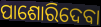
ପାଶୋରିଦେବା